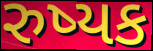
રુષ્યક